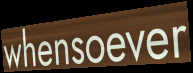
whensoever